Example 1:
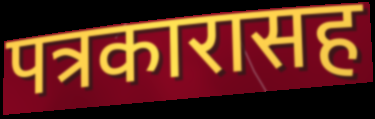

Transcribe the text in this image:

पत्रकारासह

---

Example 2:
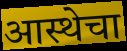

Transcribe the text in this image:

आस्थेचा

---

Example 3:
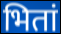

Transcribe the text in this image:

भितां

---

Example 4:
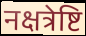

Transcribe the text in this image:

नक्षत्रेष्टि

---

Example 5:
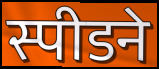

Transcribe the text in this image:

स्पीडने